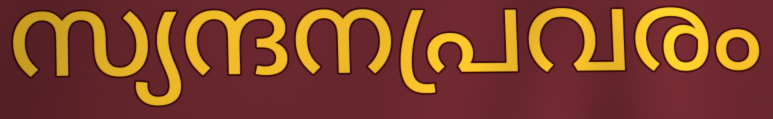
സ്യന്ദനപ്രവരം